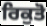
ਰਿਕੁਤੋ